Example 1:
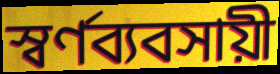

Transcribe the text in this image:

স্বর্ণব্যবসায়ী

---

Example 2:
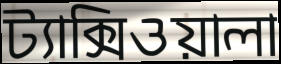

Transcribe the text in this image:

ট্যাক্সিওয়ালা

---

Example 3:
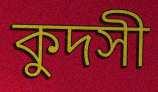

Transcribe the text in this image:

কুদসী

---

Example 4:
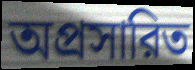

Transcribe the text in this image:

অপ্রসারিত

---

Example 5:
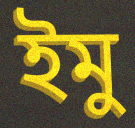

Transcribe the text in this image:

ইমু